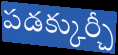
పడక్కుర్చీ